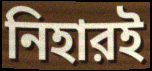
নিহারই